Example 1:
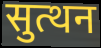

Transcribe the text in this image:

सुत्थन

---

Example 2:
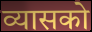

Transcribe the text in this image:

व्यासको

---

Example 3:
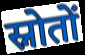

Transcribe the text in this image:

स्नोतों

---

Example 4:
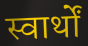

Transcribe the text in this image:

स्वार्थों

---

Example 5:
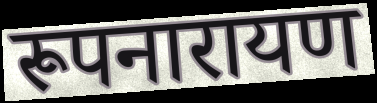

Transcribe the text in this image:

रूपनारायण